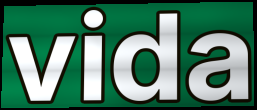
vida